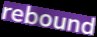
rebound